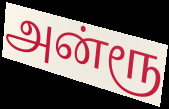
அன்ரூ